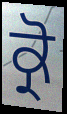
ਕ੍ਰੋ